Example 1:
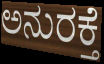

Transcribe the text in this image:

ಅನುರಕ್ತೆ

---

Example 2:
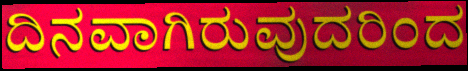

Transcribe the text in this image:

ದಿನವಾಗಿರುವುದರಿಂದ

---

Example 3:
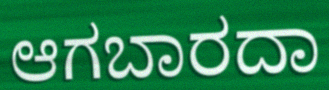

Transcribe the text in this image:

ಆಗಬಾರದಾ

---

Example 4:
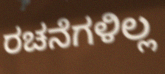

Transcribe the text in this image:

ರಚನೆಗಳಿಲ್ಲ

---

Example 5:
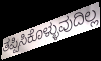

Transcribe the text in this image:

ತಪ್ಪಿಸಿಕೊಳ್ಳುವುದಿಲ್ಲ